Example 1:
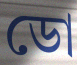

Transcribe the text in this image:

ডো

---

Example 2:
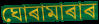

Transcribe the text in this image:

ঘোৰামাৰাৰ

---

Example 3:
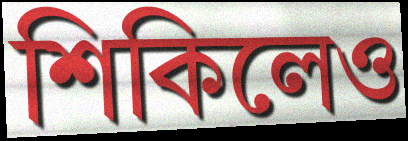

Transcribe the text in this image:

শিকিলেও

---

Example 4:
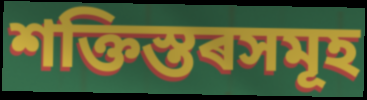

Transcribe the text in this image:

শক্তিস্তৰসমূহ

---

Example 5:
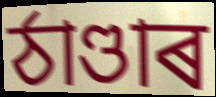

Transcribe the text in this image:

ঠাণ্ডাৰ